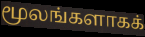
மூலங்களாகக்